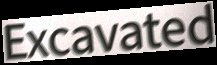
Excavated